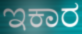
ಇಕಾರ